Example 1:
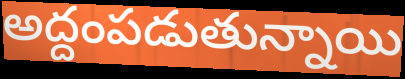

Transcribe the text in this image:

అద్దంపడుతున్నాయి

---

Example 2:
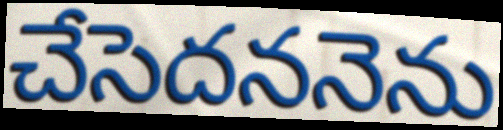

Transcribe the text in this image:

చేసెదననెను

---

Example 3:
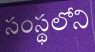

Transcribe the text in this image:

సంస్థలోని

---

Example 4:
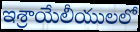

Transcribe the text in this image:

ఇశ్రాయేలీయులలో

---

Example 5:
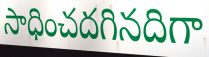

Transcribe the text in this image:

సాధించదగినదిగా